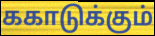
ககாடுக்கும்